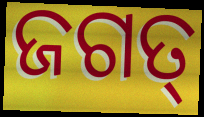
ଜଗତ୍